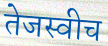
तेजस्वीच